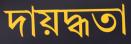
দায়দ্ধতা